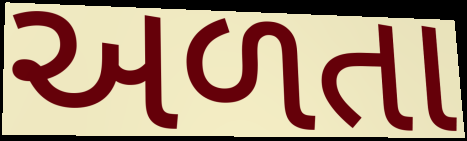
અળતા